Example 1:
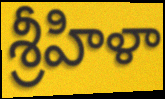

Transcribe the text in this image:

శ్రీహిళా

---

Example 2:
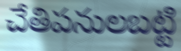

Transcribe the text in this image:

చేతిపనులబట్టి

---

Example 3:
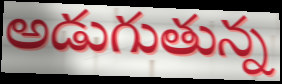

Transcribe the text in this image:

అడుగుతున్న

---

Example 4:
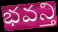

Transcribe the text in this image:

భవన్తి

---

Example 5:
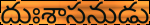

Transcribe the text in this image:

దుఃశాసనుడు